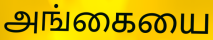
அங்கையை